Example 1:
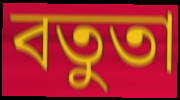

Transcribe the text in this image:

বতুতা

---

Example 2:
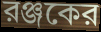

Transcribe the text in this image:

রঞ্জকের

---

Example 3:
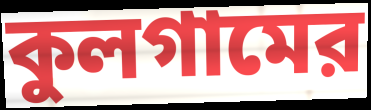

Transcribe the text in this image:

কুলগামের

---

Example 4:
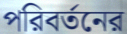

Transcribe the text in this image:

পরিবর্তনের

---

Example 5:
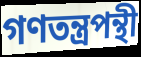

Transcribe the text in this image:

গণতন্ত্রপন্থী